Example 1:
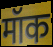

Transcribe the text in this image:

मॉक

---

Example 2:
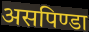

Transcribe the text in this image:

असपिण्डा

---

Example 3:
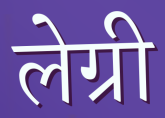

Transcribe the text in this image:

लेग्री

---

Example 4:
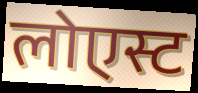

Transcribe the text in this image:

लोएस्ट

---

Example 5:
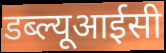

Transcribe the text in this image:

डब्ल्यूआईसी